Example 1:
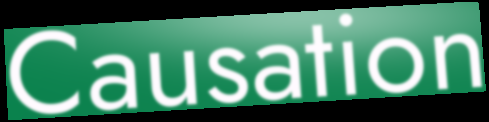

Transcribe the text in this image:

Causation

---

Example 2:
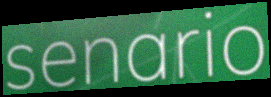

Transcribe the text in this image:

senario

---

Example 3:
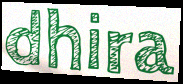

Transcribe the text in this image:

dhira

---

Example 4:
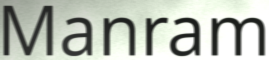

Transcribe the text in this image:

Manram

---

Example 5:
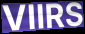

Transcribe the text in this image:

VIIRS